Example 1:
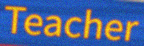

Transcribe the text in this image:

Teacher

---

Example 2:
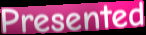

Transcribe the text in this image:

Presented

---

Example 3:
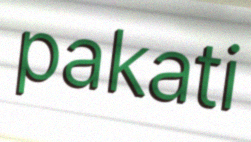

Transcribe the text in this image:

pakati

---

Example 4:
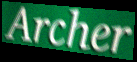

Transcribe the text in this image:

Archer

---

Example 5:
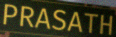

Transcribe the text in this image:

PRASATH